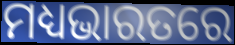
ମଧ୍ୟଭାରତରେ